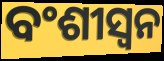
ବଂଶୀସ୍ୱନ